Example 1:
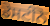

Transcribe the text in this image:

ਡੇਸਟੀਨੋ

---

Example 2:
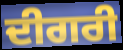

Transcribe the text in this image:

ਦੀਗਰੀ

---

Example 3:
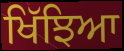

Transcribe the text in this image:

ਖਿੱਝਿਆ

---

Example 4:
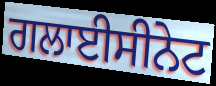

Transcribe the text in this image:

ਗਲਾਈਸੀਨੇਟ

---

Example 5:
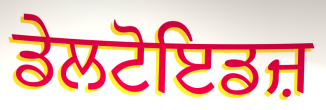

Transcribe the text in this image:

ਡੇਲਟੋਇਡਜ਼